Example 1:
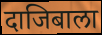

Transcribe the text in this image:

दाजिबाला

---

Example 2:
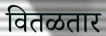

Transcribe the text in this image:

वितळतार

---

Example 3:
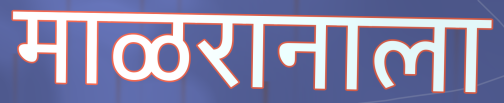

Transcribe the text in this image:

माळरानाला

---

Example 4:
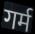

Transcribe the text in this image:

गर्म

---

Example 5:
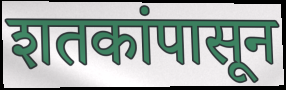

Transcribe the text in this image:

शतकांपासून